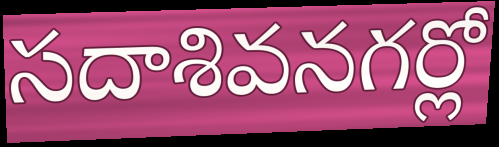
సదాశివనగర్లో